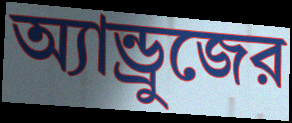
অ্যান্ড্রুজের